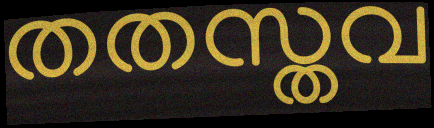
തതസ്തവ